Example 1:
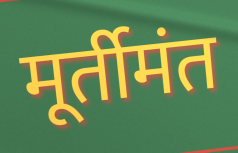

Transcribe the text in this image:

मूर्तीमंत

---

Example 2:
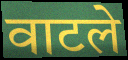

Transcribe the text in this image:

वाटले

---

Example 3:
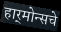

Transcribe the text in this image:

हार्मोन्सचे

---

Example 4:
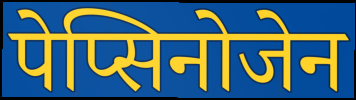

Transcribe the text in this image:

पेप्सिनोजेन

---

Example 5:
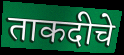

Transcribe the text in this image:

ताकदीचे